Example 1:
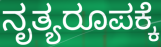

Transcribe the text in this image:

ನೃತ್ಯರೂಪಕ್ಕೆ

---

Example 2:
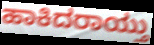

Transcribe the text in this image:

ಹಾಕಿದರಾಯ್ತು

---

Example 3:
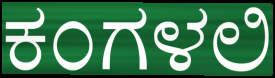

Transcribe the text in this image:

ಕಂಗಳಲಿ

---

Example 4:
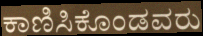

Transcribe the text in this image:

ಕಾಣಿಸಿಕೊಂಡವರು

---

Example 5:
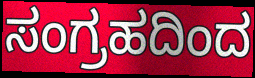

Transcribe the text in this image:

ಸಂಗ್ರಹದಿಂದ